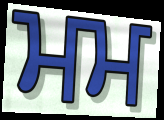
ਮਮ